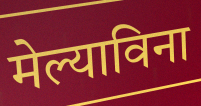
मेल्याविना